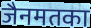
जैनमतका